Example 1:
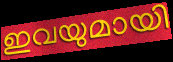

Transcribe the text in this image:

ഇവയുമായി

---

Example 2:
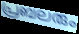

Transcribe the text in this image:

പ്രബലരും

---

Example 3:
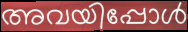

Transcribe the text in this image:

അവയിപ്പോൾ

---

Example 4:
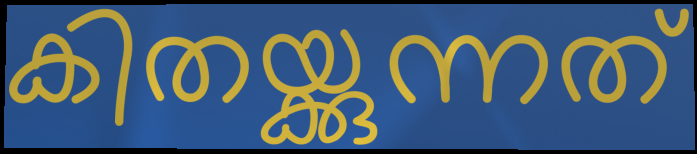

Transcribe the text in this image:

കിതയ്ക്കുന്നത്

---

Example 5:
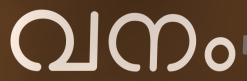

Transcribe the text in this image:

വനം